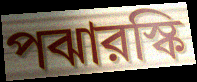
পঝারস্কি